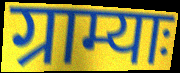
ग्राम्याः